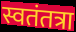
स्वतंतत्रा